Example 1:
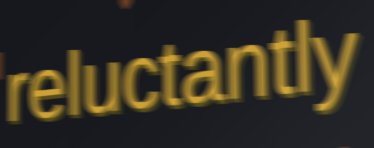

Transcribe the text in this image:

reluctantly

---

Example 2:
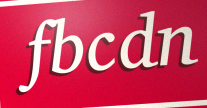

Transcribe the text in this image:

fbcdn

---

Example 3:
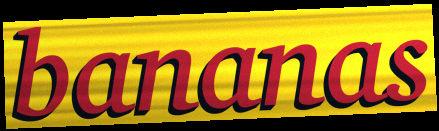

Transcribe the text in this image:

bananas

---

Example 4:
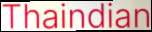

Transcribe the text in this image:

Thaindian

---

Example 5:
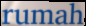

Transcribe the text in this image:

rumah